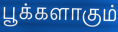
பூக்களாகும்